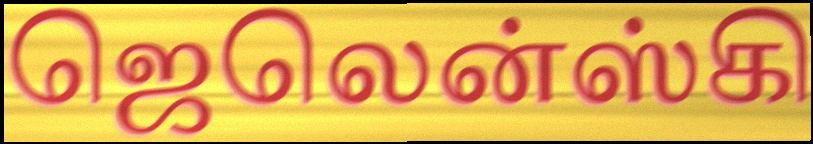
ஜெலென்ஸ்கி